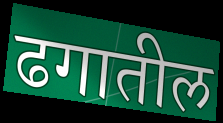
ढगातील